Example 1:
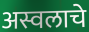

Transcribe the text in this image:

अस्वलाचे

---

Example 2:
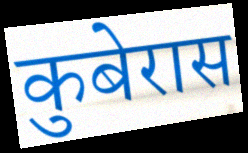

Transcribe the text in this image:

कुबेरास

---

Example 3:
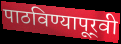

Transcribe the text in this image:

पाठविण्यापूर्वी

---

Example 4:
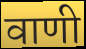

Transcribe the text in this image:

वाणी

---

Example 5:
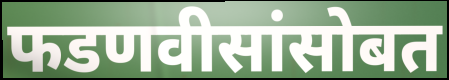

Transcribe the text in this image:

फडणवीसांसोबत